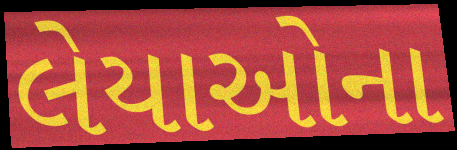
લેયાઓના